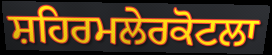
ਸ਼ਹਿਰਮਲੇਰਕੋਟਲਾ